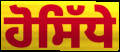
ਹੋਸਿੱਧੇ